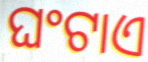
ଘଂଟାଏ